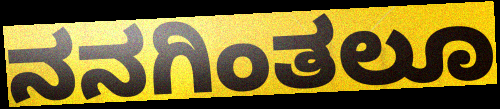
ನನಗಿಂತಲೂ